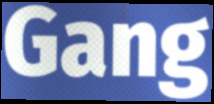
Gang